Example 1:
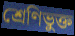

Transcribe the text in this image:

শ্রেণিভুক্ত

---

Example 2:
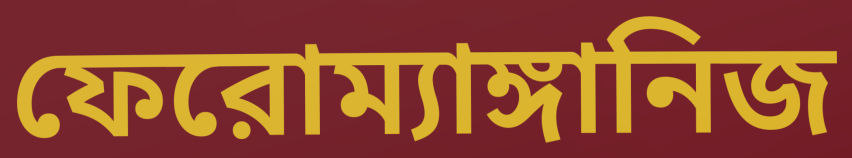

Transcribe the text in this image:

ফেরোম্যাঙ্গানিজ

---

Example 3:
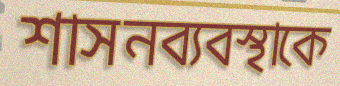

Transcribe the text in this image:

শাসনব্যবস্থাকে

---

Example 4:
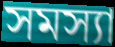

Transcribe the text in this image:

সমস্যা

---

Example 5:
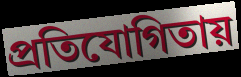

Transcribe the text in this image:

প্রতিযোগিতায়